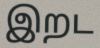
இறட